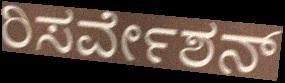
ರಿಸರ್ವೇಶನ್